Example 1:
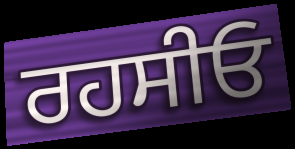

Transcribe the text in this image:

ਰਹਸੀਓ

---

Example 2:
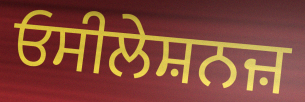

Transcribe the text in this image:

ਓਸੀਲੇਸ਼ਨਜ਼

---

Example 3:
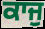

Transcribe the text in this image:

ਕਾਜੁ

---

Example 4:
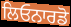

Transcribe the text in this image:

ਲਿਓਨਾਰਡੋ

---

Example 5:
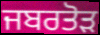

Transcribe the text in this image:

ਜਬਰਤੋੜ